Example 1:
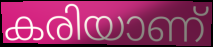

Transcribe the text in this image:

കരിയാണ്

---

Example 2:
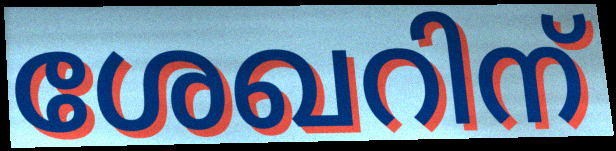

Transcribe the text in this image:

ശേഖറിന്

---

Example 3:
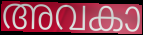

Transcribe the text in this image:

അവകാ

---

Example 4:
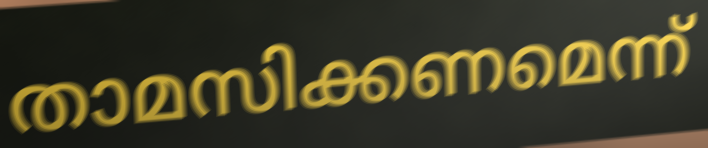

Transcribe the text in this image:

താമസിക്കണമെന്ന്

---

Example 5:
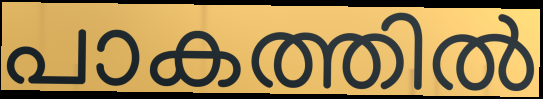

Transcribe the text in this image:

പാകത്തിൽ